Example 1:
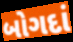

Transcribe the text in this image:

બોગદાં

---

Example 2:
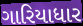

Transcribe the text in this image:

ગારિયાધાર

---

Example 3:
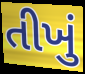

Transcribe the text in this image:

તીખું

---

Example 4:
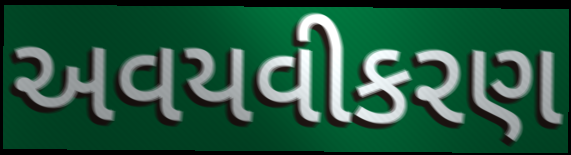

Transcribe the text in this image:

અવયવીકરણ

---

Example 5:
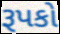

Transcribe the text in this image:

રૂપકો